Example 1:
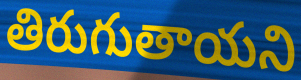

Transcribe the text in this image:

తిరుగుతాయని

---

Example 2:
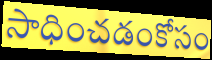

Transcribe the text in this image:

సాధించడంకోసం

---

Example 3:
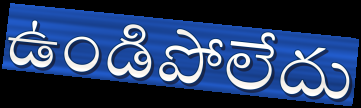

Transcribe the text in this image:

ఉండిపోలేదు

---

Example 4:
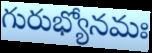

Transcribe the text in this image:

గురుభ్యోనమః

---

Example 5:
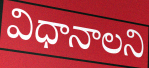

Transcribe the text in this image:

విధానాలని